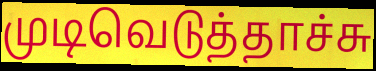
முடிவெடுத்தாச்சு